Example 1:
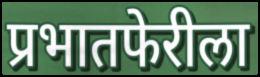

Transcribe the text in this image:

प्रभातफेरीला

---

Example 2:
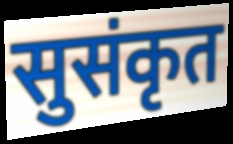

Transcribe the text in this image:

सुसंकृत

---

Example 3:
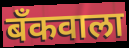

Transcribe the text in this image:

बँकवाला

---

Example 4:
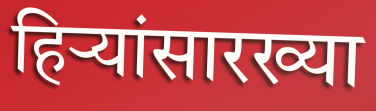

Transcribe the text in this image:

हिऱ्यांसारख्या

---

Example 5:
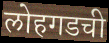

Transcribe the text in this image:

लोहगडची